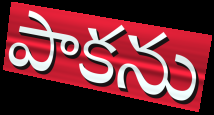
పాకను